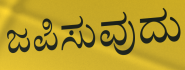
ಜಪಿಸುವುದು